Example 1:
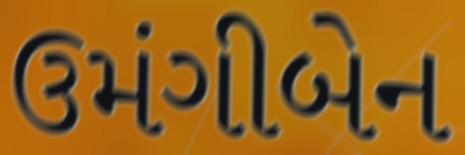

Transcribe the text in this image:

ઉમંગીબેન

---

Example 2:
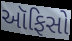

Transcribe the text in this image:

ઑફિસો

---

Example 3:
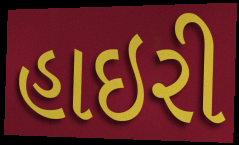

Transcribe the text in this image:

હાઇરી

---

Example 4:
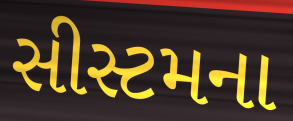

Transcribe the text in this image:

સીસ્ટમના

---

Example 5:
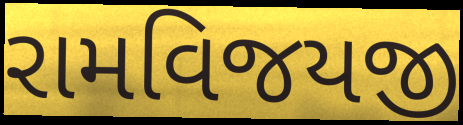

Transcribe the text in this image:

રામવિજયજી